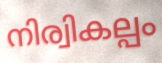
നിര്വികല്പം